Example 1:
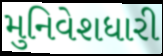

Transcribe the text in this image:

મુનિવેશધારી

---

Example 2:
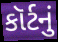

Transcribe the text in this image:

કૉર્ટનું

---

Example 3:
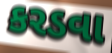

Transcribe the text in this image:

કરડવા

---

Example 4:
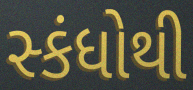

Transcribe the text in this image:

સ્કંધોથી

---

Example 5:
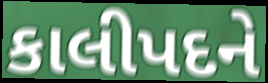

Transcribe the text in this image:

કાલીપદને